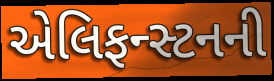
એલિફન્સ્ટનની